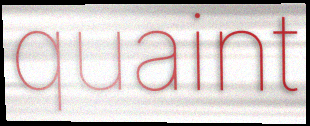
quaint